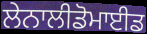
ਲੇਨਾਲੀਡੋਮਾਈਡ